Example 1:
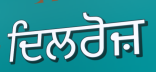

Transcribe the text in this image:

ਦਿਲਰੋਜ਼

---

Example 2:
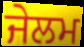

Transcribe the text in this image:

ਜੇਲਮ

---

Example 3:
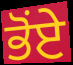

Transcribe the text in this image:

ਭੋਂਏ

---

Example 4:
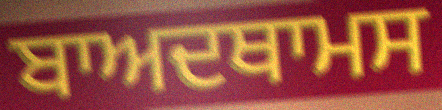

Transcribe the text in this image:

ਬਾਅਦਥਾਮਸ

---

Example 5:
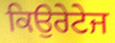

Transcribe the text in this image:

ਕਿਉਰੇਟੇਜ